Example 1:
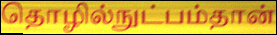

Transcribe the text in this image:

தொழில்நுட்பம்தான்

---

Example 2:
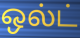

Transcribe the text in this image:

ஒல்ட்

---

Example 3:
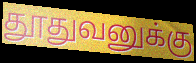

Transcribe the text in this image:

தூதுவனுக்கு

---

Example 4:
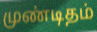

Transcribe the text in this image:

முண்டிதம்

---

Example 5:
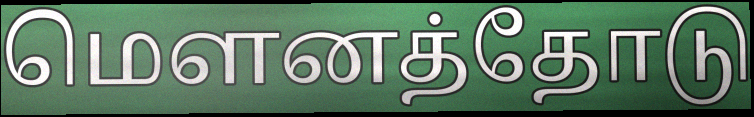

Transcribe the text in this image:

மௌனத்தோடு